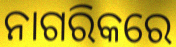
ନାଗରିକରେ